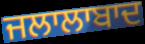
ਜਲਾਲਾਬਾਦ